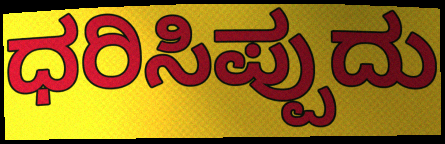
ಧರಿಸಿಪ್ಪುದು